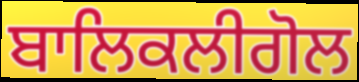
ਬਾਲਿਕਲੀਗੋਲ